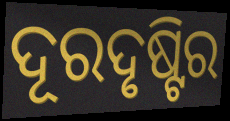
ଦୂରଦୃଷ୍ଟିର